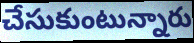
చేసుకుంటున్నారు